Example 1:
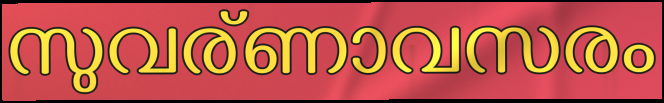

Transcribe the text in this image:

സുവര്ണാവസരം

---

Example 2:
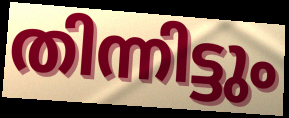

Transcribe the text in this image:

തിന്നിട്ടും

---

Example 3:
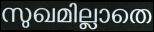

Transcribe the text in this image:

സുഖമില്ലാതെ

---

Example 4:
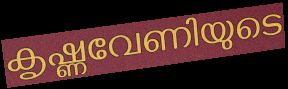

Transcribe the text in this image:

കൃഷ്ണവേണിയുടെ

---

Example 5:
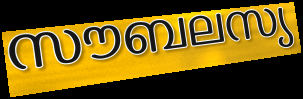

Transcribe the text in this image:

സൗബലസ്യ